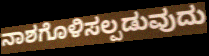
ನಾಶಗೊಳಿಸಲ್ಪಡುವುದು